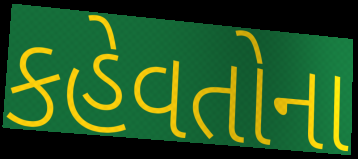
કહેવતોના